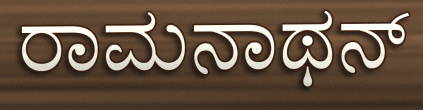
ರಾಮನಾಥನ್